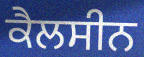
ਕੈਲਸੀਨ